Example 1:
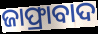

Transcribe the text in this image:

ଜାଫ୍ରାବାଦ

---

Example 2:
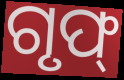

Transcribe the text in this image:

ଗୃଫ୍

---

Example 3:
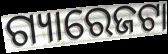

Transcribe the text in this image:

ଗ୍ୟାରେଜଟା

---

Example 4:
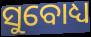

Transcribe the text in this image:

ସୁବୋଧ୍ୟ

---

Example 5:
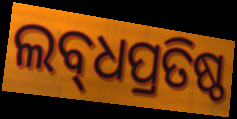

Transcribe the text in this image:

ଲବ୍‌ଧପ୍ରତିଷ୍ଠ